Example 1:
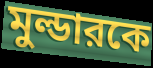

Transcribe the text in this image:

মুল্ডারকে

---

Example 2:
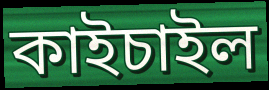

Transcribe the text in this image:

কাইচাইল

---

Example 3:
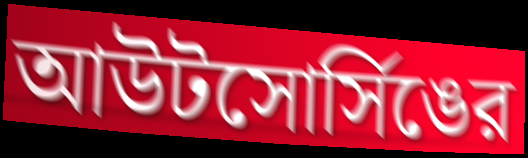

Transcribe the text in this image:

আউটসোর্সিঙের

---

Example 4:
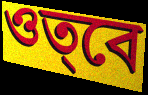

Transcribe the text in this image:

ওত্‌বে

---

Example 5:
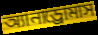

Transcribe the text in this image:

অ্যানাড্রোমাস